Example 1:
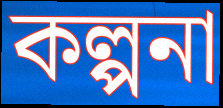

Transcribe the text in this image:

কল্পনা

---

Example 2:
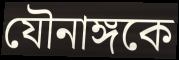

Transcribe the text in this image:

যৌনাঙ্গকে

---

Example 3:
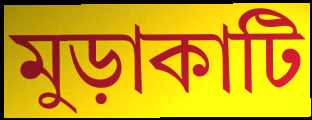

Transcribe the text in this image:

মুড়াকাটি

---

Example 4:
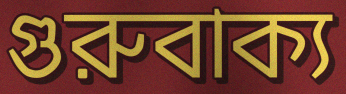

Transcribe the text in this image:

গুরুবাক্য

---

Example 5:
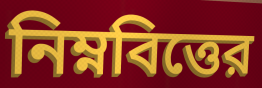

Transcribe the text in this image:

নিম্নবিত্তের